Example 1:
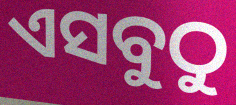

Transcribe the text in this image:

ଏସବୁଠୁ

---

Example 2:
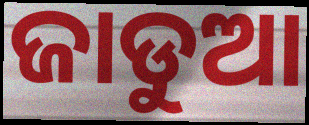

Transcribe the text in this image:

ଜାଡୁଆ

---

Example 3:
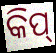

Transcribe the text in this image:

କିପ୍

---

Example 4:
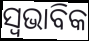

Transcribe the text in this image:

ସ୍ଵଭାବିକ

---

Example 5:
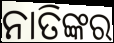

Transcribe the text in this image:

ନାତିଙ୍କର